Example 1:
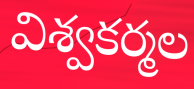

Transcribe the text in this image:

విశ్వకర్మల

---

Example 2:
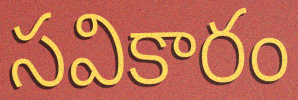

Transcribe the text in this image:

సవికారం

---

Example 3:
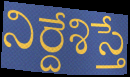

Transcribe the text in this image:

నిర్దేశిస్తే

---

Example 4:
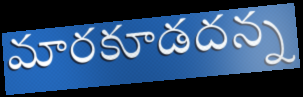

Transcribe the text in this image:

మారకూడదన్న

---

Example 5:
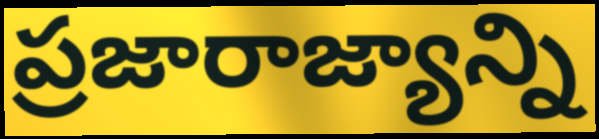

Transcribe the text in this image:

ప్రజారాజ్యాన్ని